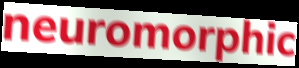
neuromorphic